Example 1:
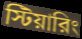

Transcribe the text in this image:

স্টিয়ারিং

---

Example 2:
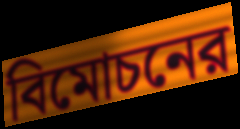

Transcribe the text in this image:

বিমোচনের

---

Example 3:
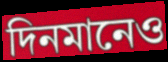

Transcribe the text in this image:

দিনমানেও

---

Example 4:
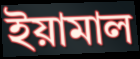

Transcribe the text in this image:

ইয়ামাল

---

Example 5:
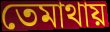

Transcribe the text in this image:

তেমাথায়